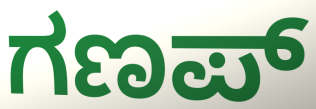
ಗಣಪ್